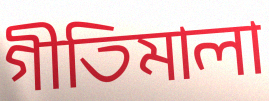
গীতিমালা